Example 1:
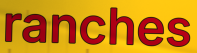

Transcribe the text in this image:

ranches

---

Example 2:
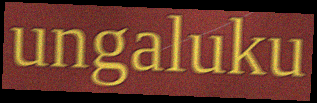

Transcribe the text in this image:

ungaluku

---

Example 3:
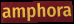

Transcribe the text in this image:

amphora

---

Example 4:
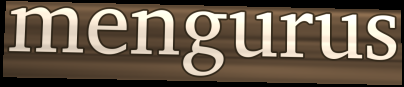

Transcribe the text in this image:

mengurus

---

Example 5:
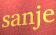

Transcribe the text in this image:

sanje